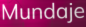
Mundaje